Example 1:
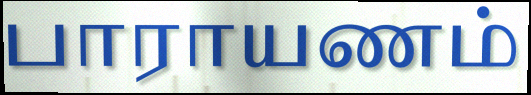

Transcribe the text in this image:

பாராயணம்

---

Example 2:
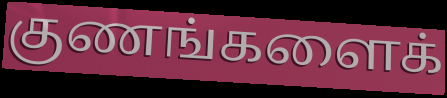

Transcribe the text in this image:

குணங்களைக்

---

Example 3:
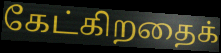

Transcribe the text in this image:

கேட்கிறதைக்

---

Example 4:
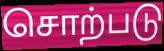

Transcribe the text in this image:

சொற்படு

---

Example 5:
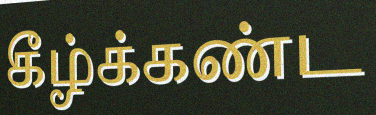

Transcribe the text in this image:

கீழ்க்கண்ட